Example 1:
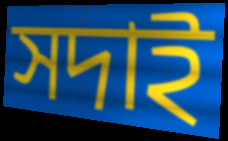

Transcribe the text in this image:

সদাই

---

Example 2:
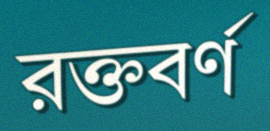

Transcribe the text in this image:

রক্তবর্ণ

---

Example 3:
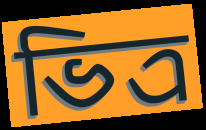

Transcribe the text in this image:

ভিত্র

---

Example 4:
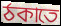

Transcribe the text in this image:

ঠকাতে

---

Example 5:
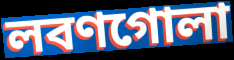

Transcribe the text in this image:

লবণগোলা